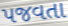
પજવતા